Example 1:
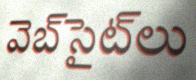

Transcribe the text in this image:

వెబ్‌సైట్‌లు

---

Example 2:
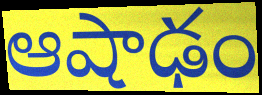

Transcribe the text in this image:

ఆషాఢం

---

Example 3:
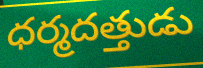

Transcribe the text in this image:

ధర్మదత్తుడు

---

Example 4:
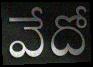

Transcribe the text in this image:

వేదో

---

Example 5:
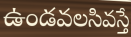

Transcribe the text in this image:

ఉండవలసివస్తే